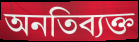
অনতিব্যক্ত